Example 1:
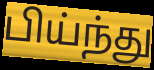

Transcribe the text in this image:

பிய்ந்து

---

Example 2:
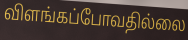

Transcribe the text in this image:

விளங்கப்போவதில்லை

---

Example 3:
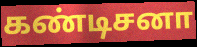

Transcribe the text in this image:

கண்டிசனா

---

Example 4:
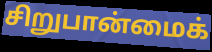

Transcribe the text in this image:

சிறுபான்மைக்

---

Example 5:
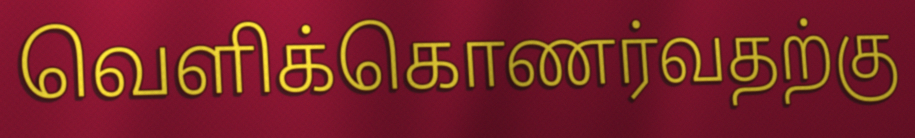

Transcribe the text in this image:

வெளிக்கொணர்வதற்கு